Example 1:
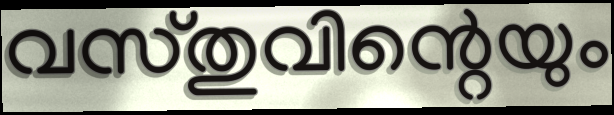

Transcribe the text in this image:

വസ്തുവിന്റെയും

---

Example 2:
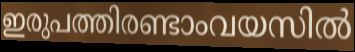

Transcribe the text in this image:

ഇരുപത്തിരണ്ടാംവയസിൽ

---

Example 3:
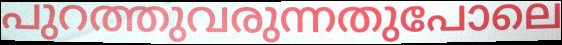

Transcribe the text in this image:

പുറത്തുവരുന്നതുപോലെ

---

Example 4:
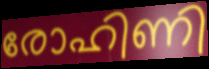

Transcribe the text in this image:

രോഹിണി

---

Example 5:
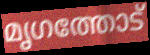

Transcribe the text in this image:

മൃഗത്തോട്